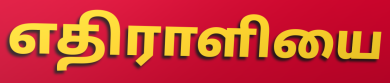
எதிராளியை